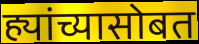
ह्यांच्यासोबत